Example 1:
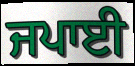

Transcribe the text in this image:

ਜਪਾਈ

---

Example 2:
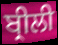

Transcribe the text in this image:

ਬ੍ਰੀਲੀ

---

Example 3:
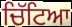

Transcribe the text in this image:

ਚਿੱਟਿਆ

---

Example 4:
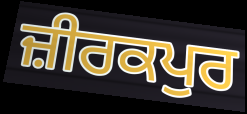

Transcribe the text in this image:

ਜ਼ੀਰਕਪੁਰ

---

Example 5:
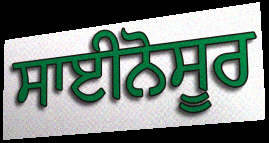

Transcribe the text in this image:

ਸਾਈਨੋਸੂਰ